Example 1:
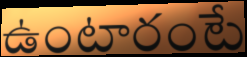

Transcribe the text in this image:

ఉంటారంటే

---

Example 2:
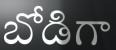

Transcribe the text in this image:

బోడిగా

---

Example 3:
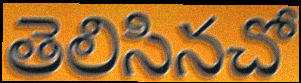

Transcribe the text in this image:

తెలిసినచో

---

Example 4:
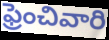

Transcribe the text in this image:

ఫ్రెంచివారి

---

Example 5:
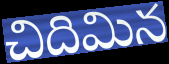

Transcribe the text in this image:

చిదిమిన